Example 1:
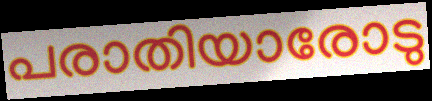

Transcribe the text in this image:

പരാതിയാരോടു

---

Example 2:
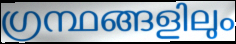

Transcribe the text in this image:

ഗ്രന്ഥങ്ങളിലും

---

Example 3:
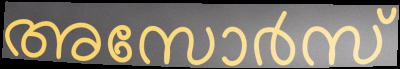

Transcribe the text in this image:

അസോർസ്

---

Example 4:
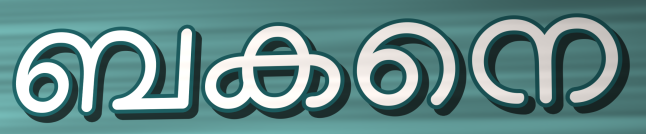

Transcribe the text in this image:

ബകനെ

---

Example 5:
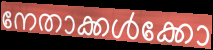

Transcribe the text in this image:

നേതാക്കൾക്കോ